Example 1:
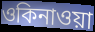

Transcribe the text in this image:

ওকিনাওয়া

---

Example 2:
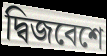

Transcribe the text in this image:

দ্বিজবেশে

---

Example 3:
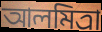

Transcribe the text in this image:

আলমিত্রা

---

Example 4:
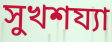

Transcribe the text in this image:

সুখশয্যা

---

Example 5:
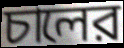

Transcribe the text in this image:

চালের